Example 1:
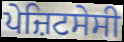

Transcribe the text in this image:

ਪੇਜ਼ਿਟਸੇਸੀ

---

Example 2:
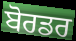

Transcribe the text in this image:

ਬੋਰਡਰ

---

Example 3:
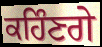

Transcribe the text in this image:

ਕਹਿੰਣਗੇ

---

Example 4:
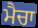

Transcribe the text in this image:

ਮੈਚਾ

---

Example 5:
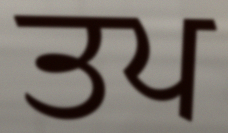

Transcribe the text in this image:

ਤਪ